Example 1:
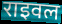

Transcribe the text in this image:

राइवल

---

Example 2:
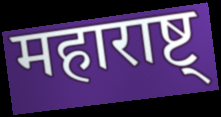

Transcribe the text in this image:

महाराष्ट्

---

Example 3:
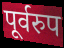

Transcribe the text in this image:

पूर्वरुप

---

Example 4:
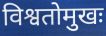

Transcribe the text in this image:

विश्वतोमुखः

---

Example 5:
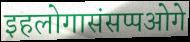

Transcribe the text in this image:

इहलोगासंसप्पओगे